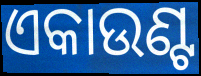
ଏକାଉଣ୍ଟ